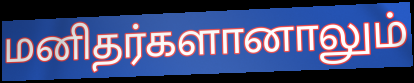
மனிதர்களானாலும்